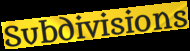
Subdivisions